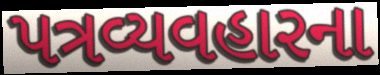
પત્રવ્યવહારના